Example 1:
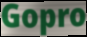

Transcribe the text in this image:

Gopro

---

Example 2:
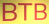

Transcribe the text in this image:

BTB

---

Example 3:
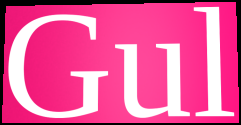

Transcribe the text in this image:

Gul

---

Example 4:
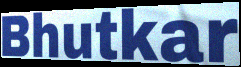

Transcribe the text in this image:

Bhutkar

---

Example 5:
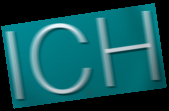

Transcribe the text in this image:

ICH